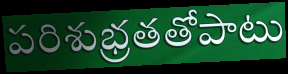
పరిశుభ్రతతోపాటు